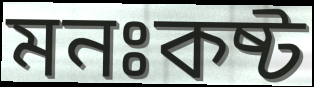
মনঃকষ্ট